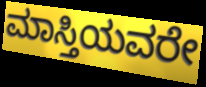
ಮಾಸ್ತಿಯವರೇ